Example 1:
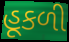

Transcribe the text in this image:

હૂકળી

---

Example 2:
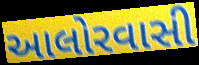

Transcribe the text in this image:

આલોરવાસી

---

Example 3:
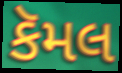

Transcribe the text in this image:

કૅમલ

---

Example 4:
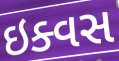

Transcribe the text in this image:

ઇક્વસ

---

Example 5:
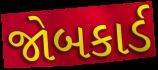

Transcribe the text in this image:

જોબકાર્ડ